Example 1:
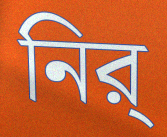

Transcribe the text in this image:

নির্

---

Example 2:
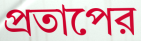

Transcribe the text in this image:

প্রতাপের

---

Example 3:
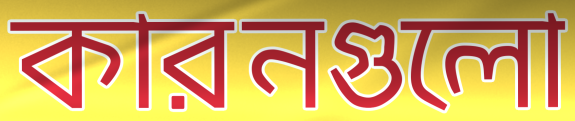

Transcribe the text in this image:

কারনগুলো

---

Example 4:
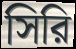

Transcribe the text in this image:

সিরি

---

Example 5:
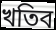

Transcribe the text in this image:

খতিব